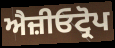
ਐਜ਼ੀਓਟ੍ਰੋਪ